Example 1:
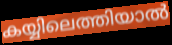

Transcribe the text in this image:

കയ്യിലെത്തിയാൽ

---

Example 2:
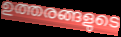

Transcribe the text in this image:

ഉത്തരങ്ങളുടെ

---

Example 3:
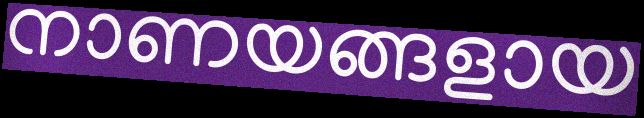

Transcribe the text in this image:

നാണയങ്ങളായ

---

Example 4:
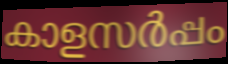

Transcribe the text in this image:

കാളസർപ്പം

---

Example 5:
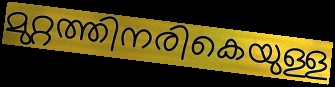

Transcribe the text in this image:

മുറ്റത്തിനരികെയുള്ള